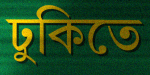
ঢুকিতে